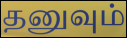
தனுவும்